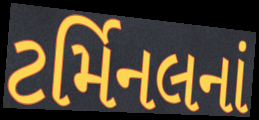
ટર્મિનલનાં